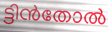
ട്ടിൻതോൽ